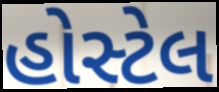
હોસ્ટેલ